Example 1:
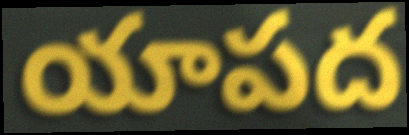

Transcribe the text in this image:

యాపద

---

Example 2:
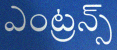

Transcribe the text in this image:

ఎంట్రన్స్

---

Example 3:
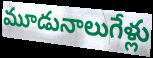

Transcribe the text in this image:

మూడునాలుగేళ్లు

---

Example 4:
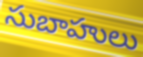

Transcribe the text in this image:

సుబాహులు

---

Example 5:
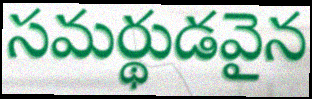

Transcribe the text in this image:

సమర్థుడవైన